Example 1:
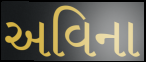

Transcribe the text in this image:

અવિના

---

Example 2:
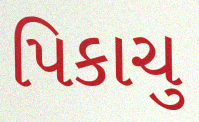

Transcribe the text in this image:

પિકાચુ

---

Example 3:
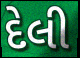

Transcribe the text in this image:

દેલી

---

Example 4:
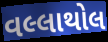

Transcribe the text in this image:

વલ્લાથોલ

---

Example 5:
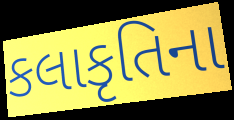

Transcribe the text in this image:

કલાકૃતિના